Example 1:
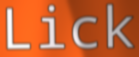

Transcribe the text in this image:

Lick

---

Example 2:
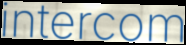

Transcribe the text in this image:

intercom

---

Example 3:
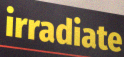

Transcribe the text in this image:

irradiate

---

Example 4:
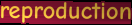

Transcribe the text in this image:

reproduction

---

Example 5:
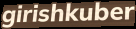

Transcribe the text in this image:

girishkuber